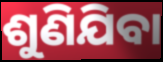
ଶୁଣିଯିବା